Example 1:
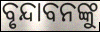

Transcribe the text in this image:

ବୃନ୍ଦାବନଙ୍କୁ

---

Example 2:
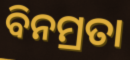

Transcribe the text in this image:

ବିନମ୍ରତା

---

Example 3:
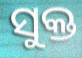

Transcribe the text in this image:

ସୁକ୍ତ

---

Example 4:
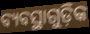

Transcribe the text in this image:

ବ୍ୟବସ୍ଥାଗୁଡ଼ିକ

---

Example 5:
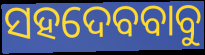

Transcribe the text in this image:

ସହଦେବବାବୁ